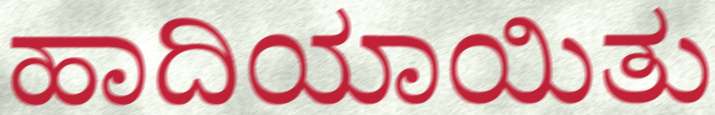
ಹಾದಿಯಾಯಿತು